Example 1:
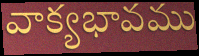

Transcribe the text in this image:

వాక్యభావము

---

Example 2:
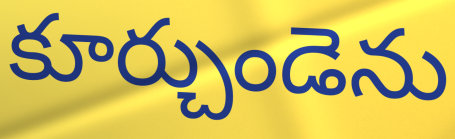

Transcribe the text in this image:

కూర్చుండెను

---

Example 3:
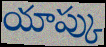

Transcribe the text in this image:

యాప్కు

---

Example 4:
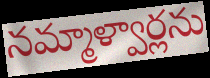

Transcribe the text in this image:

నమ్మాళ్వార్లను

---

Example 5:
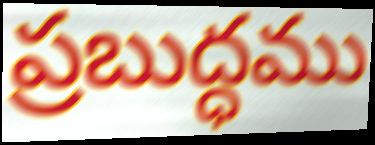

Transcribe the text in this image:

ప్రబుద్ధము